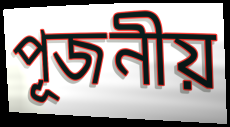
পূজনীয়